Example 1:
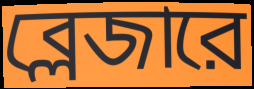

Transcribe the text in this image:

ব্লেজারে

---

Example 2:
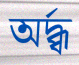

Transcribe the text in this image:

অর্দ্ধ্ব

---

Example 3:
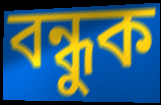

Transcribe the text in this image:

বন্ধুক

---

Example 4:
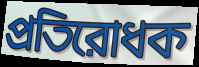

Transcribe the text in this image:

প্রতিরোধক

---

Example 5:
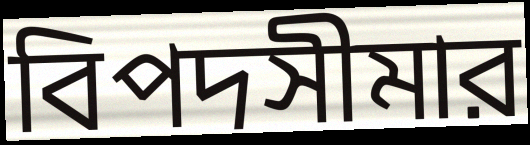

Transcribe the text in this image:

বিপদসীমার